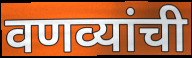
वणव्यांची